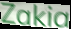
Zakia